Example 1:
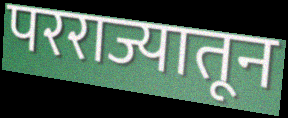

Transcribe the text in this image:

परराज्यातून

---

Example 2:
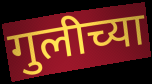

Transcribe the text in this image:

गुलीच्या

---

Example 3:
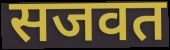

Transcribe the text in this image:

सजवत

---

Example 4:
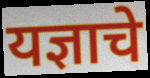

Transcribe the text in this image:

यज्ञाचे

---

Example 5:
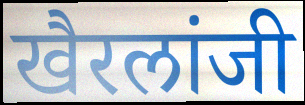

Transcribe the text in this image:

खैरलांजी